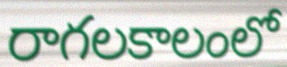
రాగలకాలంలో